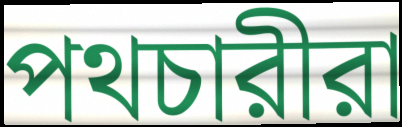
পথচারীরা